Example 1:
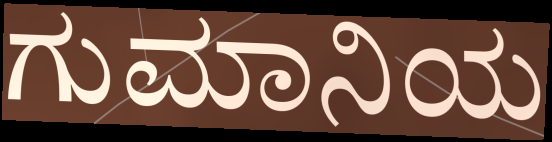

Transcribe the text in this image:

ಗುಮಾನಿಯ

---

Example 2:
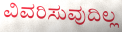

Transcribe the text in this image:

ವಿವರಿಸುವುದಿಲ್ಲ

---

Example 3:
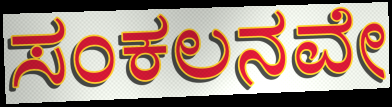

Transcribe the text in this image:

ಸಂಕಲನವೇ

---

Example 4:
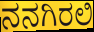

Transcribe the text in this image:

ನನಗಿರಲಿ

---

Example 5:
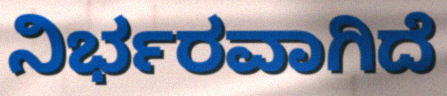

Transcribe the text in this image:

ನಿರ್ಭರವಾಗಿದೆ